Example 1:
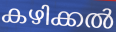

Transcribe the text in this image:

കഴിക്കൽ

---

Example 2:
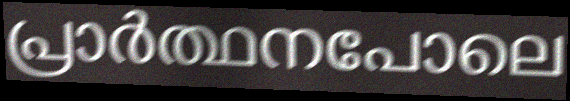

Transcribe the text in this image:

പ്രാർത്ഥനപോലെ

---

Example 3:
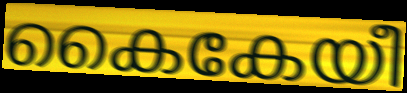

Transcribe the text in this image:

കൈകേയീ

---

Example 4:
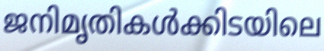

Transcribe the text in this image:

ജനിമൃതികൾക്കിടയിലെ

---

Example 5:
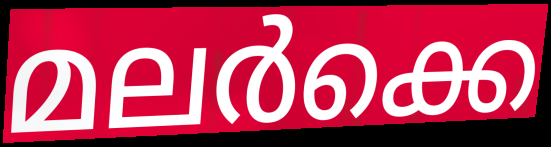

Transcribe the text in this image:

മലർക്കെ